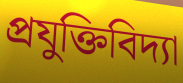
প্ৰযুক্তিবিদ্যা